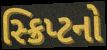
સ્ક્રિપ્ટનો